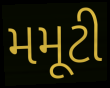
મમૂટી